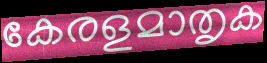
കേരളമാതൃക